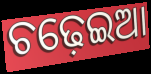
ଚଢ଼େଇଆ